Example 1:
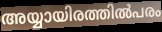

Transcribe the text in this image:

അയ്യായിരത്തിൽപരം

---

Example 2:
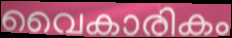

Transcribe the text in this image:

വൈകാരികം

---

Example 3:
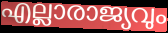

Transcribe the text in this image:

എല്ലാരാജ്യവും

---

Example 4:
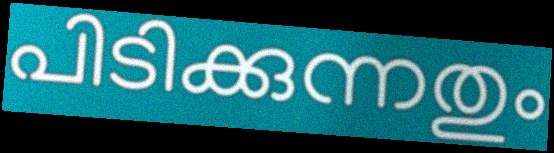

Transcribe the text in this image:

പിടിക്കുന്നതും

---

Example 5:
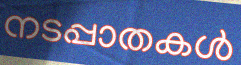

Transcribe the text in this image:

നടപ്പാതകൾ